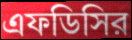
এফডিসির